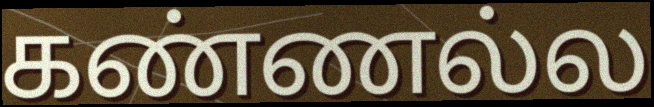
கண்ணல்ல